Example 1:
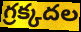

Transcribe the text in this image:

గ్రక్కదల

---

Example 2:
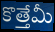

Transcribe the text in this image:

కొత్తేమీ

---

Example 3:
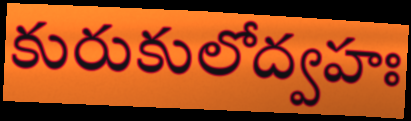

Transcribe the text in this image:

కురుకులోద్వహః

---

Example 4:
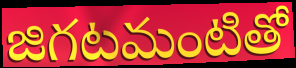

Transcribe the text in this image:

జిగటమంటితో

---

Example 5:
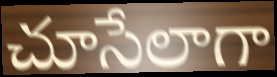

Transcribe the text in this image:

చూసేలాగా